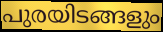
പുരയിടങ്ങളും